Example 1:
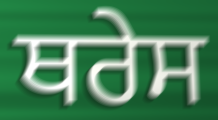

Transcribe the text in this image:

ਥਰੇਸ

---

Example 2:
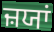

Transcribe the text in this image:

ਜ਼ਯਾਂ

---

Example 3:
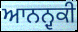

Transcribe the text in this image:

ਆਨਨ੍ਦਕੀ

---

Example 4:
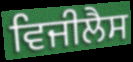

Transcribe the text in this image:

ਵਿਜੀਲੈਸ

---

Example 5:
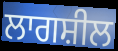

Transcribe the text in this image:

ਲਾਗਸ਼ੀਲ